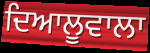
ਦਿਆਲੂਵਾਲਾ